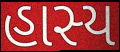
હાસ્ય